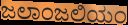
ಜಲಾಂಜಲಿಯಂ